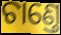
ଚାଣ୍ତେ